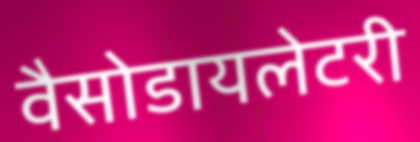
वैसोडायलेटरी